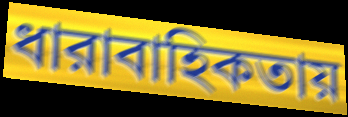
ধারাবাহিকতায়